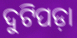
ଦୁଟିପଡ଼ା